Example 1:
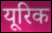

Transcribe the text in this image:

यूरिक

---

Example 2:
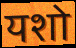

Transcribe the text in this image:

यशो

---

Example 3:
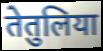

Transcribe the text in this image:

तेतुलिया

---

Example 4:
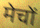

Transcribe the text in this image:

मेचों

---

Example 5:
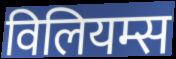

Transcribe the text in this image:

विलियम्‍स